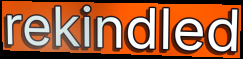
rekindled